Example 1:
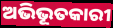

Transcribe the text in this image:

ଅଭିଭୂତକାରୀ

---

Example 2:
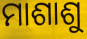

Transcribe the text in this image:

ମାଶାଶୁ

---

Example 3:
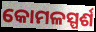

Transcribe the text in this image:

କୋମଳସ୍ପର୍ଶ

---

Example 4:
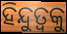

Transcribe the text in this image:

ହିନ୍ଦୁତ୍ୱକୁ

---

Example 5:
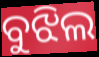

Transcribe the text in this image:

ବୁଝିଲ